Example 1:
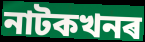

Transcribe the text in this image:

নাটকখনৰ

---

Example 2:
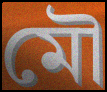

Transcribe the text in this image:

মৌ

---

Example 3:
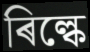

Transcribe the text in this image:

ৰিল্কে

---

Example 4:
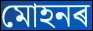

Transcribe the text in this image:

মোহনৰ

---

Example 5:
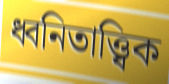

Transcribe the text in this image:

ধ্বনিতাত্ত্বিক